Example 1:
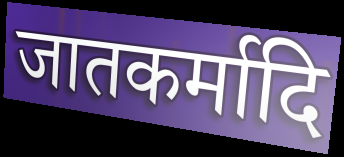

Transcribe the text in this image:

जातकर्मादि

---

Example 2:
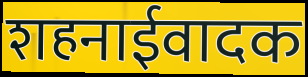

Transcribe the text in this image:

शहनाईवादक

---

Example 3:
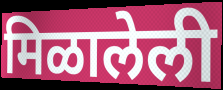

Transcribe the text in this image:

मिळालेली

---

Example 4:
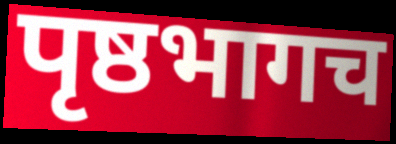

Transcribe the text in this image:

पृष्ठभागच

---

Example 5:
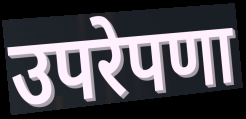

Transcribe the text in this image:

उपरेपणा